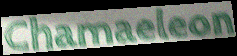
Chamaeleon